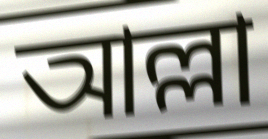
আল্লা